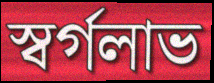
স্বর্গলাভ